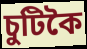
চুটিকৈ